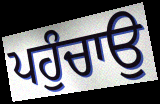
ਪਹੁੰਚਾਉ